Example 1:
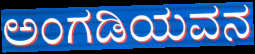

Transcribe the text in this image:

ಅಂಗಡಿಯವನ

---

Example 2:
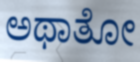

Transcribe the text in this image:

ಅಥಾತೋ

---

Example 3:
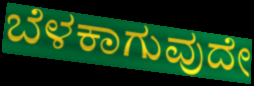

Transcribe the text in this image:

ಬೆಳಕಾಗುವುದೇ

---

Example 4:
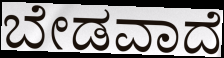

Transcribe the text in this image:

ಬೇಡವಾದೆ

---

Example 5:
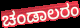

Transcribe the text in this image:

ಚಂಡಾಲರಂ